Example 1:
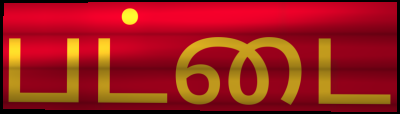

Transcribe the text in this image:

பட்டை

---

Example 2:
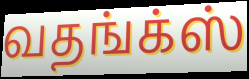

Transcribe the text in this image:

வதங்க்ஸ்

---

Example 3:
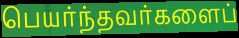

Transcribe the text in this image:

பெயர்ந்தவர்களைப்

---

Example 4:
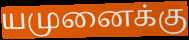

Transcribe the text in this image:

யமுனைக்கு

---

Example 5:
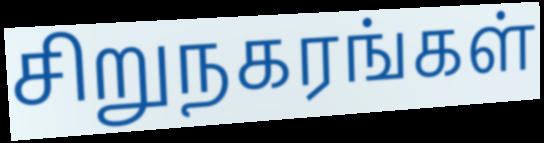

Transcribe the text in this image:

சிறுநகரங்கள்